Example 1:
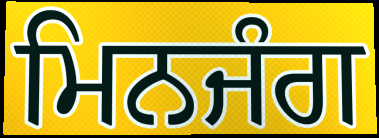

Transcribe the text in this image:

ਮਿਨਜੰਗ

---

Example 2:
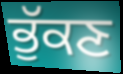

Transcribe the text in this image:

ਭੁੱਕਣ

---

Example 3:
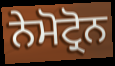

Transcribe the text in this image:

ਨੇਮੋਟ੍ਰੋਨ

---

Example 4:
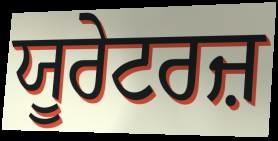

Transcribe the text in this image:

ਯੂਰੇਟਰਜ਼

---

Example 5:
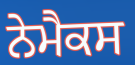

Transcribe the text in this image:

ਨੇਮੈਕਸ